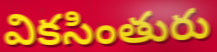
వికసింతురు